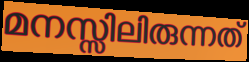
മനസ്സിലിരുന്നത്